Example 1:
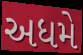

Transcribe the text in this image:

અધમે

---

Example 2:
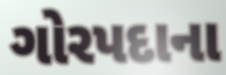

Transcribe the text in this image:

ગોરપદાના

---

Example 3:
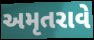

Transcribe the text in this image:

અમૃતરાવે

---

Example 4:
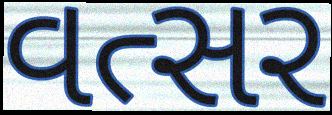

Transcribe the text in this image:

વત્સર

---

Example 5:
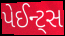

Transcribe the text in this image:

પેઈન્ટ્સ